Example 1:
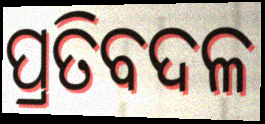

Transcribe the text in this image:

ପ୍ରତିବଦଳ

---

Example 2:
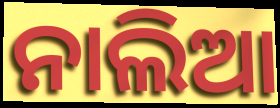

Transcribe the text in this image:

ନାଲିଆ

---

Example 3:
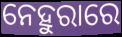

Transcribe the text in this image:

ନେହୁରାରେ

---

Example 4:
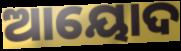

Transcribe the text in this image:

ଆୟୋଦ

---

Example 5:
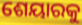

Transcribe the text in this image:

ଶେୟାରକୁ